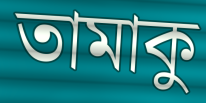
তামাকু